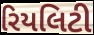
રિયલિટી